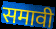
समावी